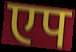
एप